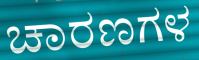
ಚಾರಣಗಳ